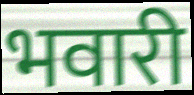
भवारी